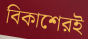
বিকাশেরই